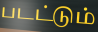
படட்டும்